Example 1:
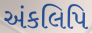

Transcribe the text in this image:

અંકલિપિ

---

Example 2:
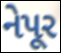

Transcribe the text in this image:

નેપૂર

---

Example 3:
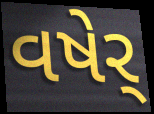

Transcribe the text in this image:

વષેર્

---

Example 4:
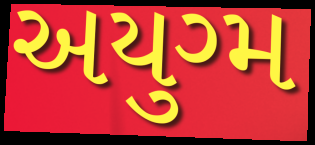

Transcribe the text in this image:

અયુગ્મ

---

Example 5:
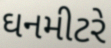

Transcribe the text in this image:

ઘનમીટરે